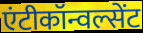
एंटीकॉन्वल्सेंट